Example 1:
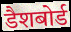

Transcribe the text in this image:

डैशबोर्ड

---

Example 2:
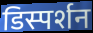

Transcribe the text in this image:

डिस्पर्शन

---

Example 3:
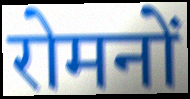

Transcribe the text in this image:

रोमनों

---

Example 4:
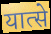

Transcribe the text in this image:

यात्से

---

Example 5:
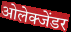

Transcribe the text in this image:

ओलेक्जेंडर